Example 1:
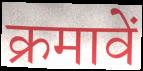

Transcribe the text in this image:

क्रमावें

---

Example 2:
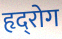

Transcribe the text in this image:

हृद्‍रोग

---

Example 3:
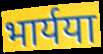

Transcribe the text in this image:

भार्यया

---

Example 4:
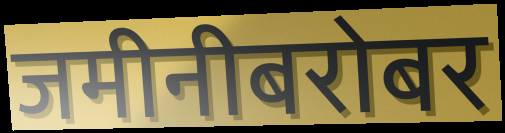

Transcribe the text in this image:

जमीनीबरोबर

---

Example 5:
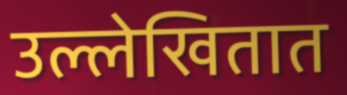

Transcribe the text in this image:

उल्लेखितात